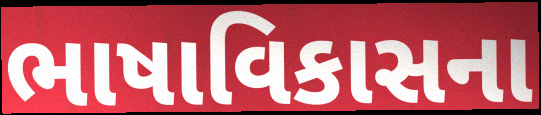
ભાષાવિકાસના